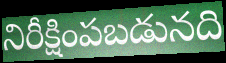
నిరీక్షింపబడునది